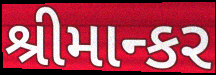
શ્રીમાન્કર